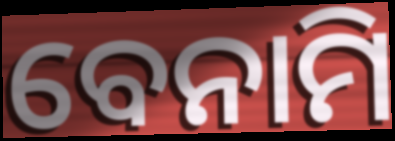
ବେନାମି